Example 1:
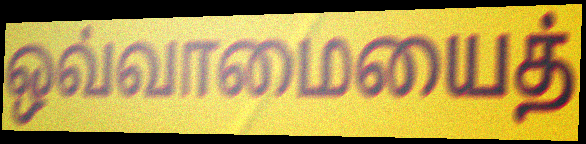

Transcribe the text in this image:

ஒவ்வாமையைத்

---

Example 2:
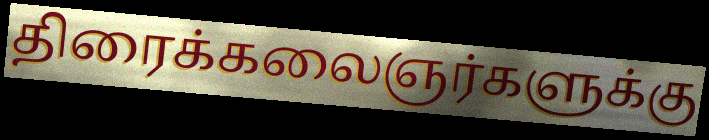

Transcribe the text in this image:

திரைக்கலைஞர்களுக்கு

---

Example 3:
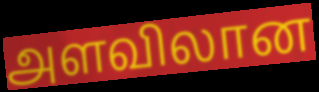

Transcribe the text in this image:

அளவிலான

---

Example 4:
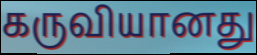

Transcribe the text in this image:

கருவியானது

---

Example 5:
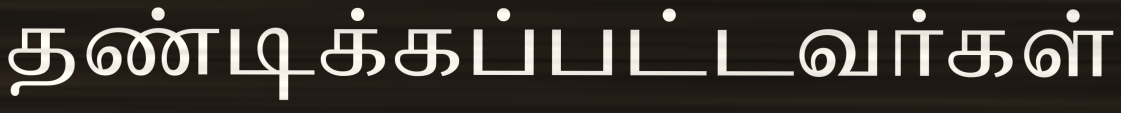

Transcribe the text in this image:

தண்டிக்கப்பட்டவர்கள்